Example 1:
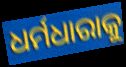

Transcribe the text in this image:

ଧର୍ମଧାରାକୁ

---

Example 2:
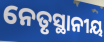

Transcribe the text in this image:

ନେତୃସ୍ଥାନୀୟ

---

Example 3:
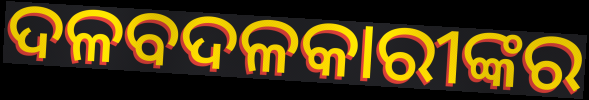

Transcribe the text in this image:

ଦଳବଦଳକାରୀଙ୍କର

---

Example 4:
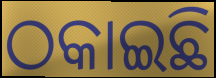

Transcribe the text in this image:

ଠକାଇଛି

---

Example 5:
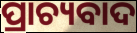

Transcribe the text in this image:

ପ୍ରାଚ୍ୟବାଦ